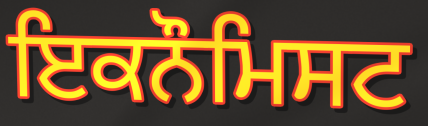
ਇਕਨੌਮਿਸਟ